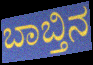
ಬಾಬ್ತಿನ